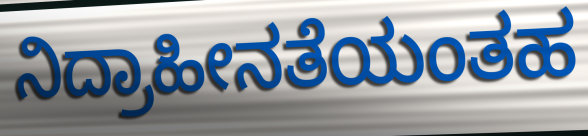
ನಿದ್ರಾಹೀನತೆಯಂತಹ